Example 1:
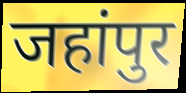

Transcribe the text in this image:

जहांपुर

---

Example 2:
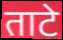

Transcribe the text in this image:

ताटे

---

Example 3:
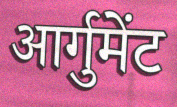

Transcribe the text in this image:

आर्गुमेंट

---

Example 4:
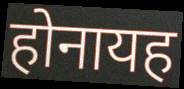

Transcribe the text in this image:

होनायह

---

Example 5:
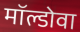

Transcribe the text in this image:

मॉल्डोवा